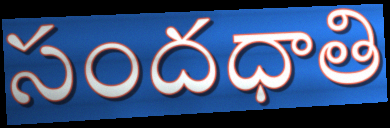
సందధాతి